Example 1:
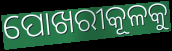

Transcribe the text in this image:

ପୋଖରୀକୂଳକୁ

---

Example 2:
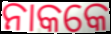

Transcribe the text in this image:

ନାକକେ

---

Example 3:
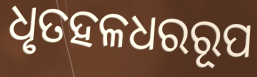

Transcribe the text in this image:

ଧୃତହଳଧରରୂପ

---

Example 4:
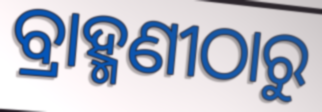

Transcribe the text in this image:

ବ୍ରାହ୍ମଣୀଠାରୁ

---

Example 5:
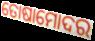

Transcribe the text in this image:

ତୋଷାମୋଦର